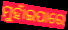
ମୁହାଁଇପାରେ